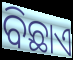
ବିଛାଏ